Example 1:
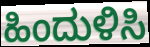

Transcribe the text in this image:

ಹಿಂದುಳಿಸಿ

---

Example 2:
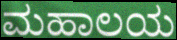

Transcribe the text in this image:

ಮಹಾಲಯ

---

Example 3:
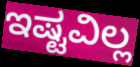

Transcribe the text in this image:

ಇಷ್ಟವಿಲ್ಲ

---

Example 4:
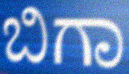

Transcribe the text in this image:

ಬಿಗಾ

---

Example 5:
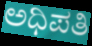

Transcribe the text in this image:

ಅಧಿಪತಿ